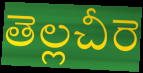
తెల్లచీరె